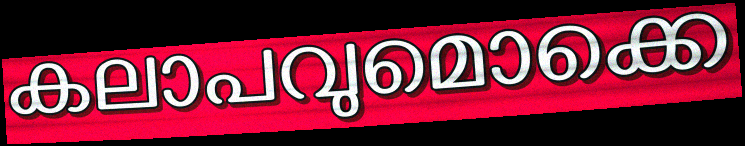
കലാപവുമൊക്കെ